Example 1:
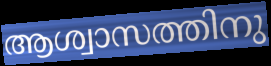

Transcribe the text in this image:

ആശ്വാസത്തിനു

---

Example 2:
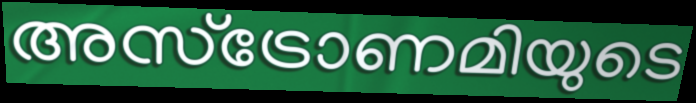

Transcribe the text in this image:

അസ്ട്രോണമിയുടെ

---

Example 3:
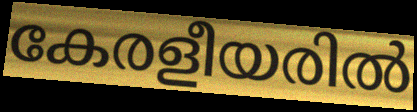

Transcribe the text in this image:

കേരളീയരിൽ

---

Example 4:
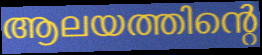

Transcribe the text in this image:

ആലയത്തിന്റെ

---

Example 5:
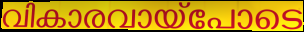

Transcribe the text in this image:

വികാരവായ്പോടെ